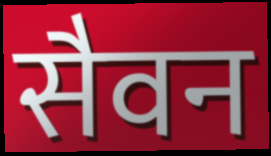
सैवन